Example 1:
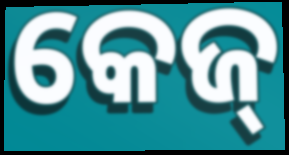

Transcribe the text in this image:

କେଜ୍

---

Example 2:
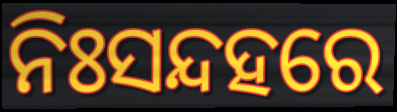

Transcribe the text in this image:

ନିଃସନ୍ଦହରେ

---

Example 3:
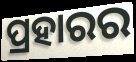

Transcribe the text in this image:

ପ୍ରହାରର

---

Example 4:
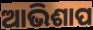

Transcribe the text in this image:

ଆଭିଶାପ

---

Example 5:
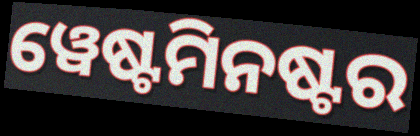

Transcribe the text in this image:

ୱେଷ୍ଟମିନଷ୍ଟର